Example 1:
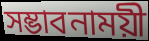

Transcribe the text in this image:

সম্ভাবনাময়ী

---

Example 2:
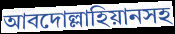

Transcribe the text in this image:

আবদোল্লাহিয়ানসহ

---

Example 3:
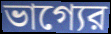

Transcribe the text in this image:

ভাগ্যের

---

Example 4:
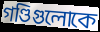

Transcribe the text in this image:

গণ্ডিগুলোকে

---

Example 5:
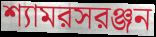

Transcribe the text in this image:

শ্যামরসরঞ্জন